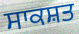
ਸਾਕਸ਼ਤ